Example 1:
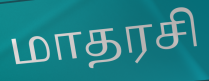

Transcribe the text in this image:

மாதரசி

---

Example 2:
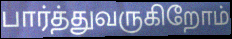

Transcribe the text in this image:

பார்த்துவருகிறோம்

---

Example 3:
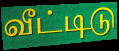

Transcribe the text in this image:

வீட்டிடு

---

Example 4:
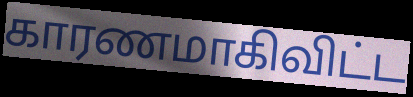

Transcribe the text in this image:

காரணமாகிவிட்ட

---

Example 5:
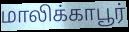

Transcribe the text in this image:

மாலிக்காபூர்